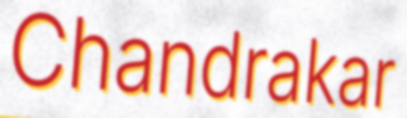
Chandrakar